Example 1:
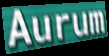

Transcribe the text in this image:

Aurum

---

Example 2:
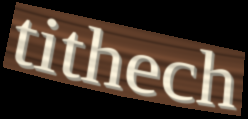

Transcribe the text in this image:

tithech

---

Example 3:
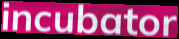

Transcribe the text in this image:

incubator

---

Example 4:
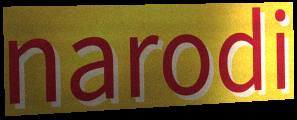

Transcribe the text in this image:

narodi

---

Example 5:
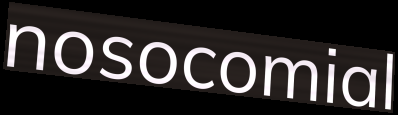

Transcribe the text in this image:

nosocomial